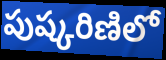
పుష్కరిణిలో